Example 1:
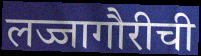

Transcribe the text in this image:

लज्जागौरीची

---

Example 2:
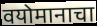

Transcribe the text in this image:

वयोमानाचा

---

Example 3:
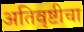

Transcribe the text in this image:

अतिवृष्टीचा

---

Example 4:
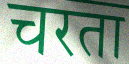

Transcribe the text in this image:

चरता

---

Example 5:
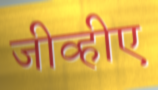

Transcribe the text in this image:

जीव्हीए